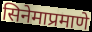
सिनेमाप्रमाणे